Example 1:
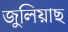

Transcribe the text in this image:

জুলিয়াছ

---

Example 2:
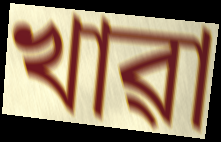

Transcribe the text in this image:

খাৱা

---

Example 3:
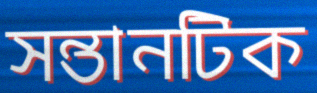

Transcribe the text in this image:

সন্তানটিক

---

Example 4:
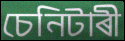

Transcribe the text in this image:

চেনিটাৰী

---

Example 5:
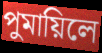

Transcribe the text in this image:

পুমায়িলে